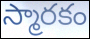
స్మారకం